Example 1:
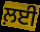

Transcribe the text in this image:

ਲ਼ਈ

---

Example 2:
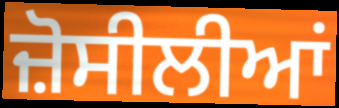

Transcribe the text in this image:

ਜ਼ੋਸੀਲੀਆਂ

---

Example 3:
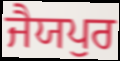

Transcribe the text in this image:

ਜੈਯਪੁਰ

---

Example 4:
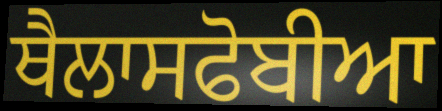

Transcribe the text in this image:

ਥੈਲਾਸਫੋਬੀਆ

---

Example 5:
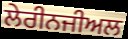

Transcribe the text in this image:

ਲੇਰੀਨਜੀਅਲ